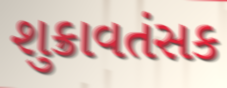
શુક્રાવતંસક